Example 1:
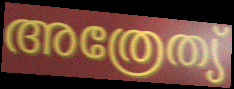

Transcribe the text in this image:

അത്രേത്യ്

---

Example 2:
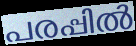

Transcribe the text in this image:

പരപ്പിൽ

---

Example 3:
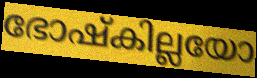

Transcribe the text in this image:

ഭോഷ്കില്ലയോ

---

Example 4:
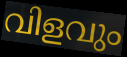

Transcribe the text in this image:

വിളവും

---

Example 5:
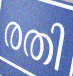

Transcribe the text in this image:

രതി